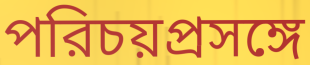
পরিচয়প্রসঙ্গে